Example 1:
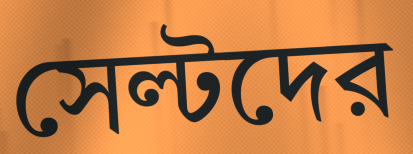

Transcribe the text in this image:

সেল্টদের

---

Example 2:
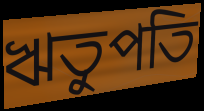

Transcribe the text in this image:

ঋতুপতি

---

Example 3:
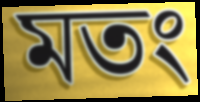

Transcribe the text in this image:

মতং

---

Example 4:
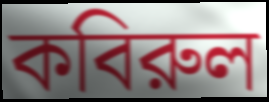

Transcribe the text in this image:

কবিরুল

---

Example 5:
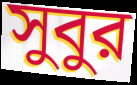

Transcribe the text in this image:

সুবুর